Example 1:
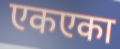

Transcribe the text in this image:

एकएका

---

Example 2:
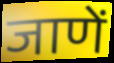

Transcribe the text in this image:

जाणें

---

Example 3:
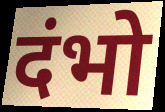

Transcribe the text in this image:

दंभो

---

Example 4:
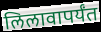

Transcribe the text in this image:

लिलावापर्यंत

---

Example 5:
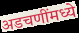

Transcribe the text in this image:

अडचणींमध्ये